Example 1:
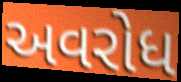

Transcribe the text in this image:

અવરોધ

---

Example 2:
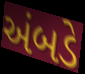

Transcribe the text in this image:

અંબડે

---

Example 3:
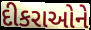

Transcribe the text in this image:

દીકરાઓને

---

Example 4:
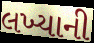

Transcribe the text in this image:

લખ્યાની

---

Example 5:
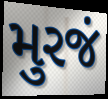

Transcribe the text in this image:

મુરજં